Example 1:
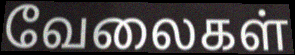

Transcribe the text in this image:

வேலைகள்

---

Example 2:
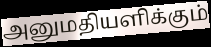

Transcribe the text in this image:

அனுமதியளிக்கும்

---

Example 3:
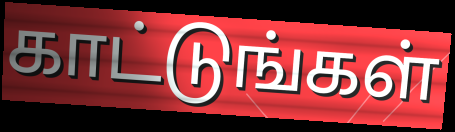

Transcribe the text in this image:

காட்டுங்கள்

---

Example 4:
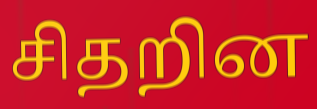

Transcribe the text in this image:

சிதறின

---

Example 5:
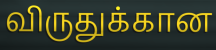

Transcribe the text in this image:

விருதுக்கான